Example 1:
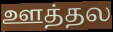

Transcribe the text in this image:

ஊத்தல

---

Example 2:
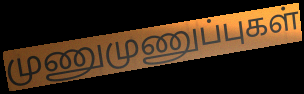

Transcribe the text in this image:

முணுமுணுப்புகள்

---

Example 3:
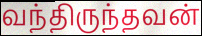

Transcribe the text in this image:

வந்திருந்தவன்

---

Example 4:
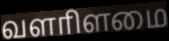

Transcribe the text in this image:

வளரிளமை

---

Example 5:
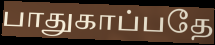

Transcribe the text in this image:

பாதுகாப்பதே